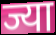
ज्या